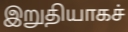
இறுதியாகச்